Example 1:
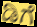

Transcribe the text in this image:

ಡಿಗೆ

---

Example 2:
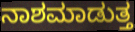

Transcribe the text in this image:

ನಾಶಮಾಡುತ್ತ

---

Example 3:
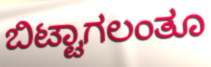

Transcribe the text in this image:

ಬಿಟ್ಟಾಗಲಂತೂ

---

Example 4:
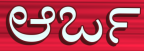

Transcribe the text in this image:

ಆರ್ಒ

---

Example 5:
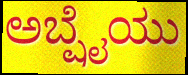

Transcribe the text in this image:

ಅಬ್ಷೈಯು